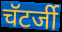
चॅटर्जी